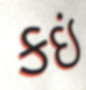
કઇં